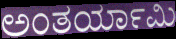
ಅಂತರ್ಯಾಮಿ